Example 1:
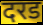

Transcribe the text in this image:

दरड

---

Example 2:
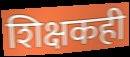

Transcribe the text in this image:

शिक्षकही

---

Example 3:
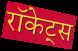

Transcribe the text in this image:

रॉकेट्स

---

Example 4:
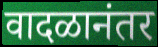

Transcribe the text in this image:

वादळानंतर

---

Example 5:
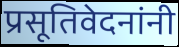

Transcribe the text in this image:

प्रसूतिवेदनांनी